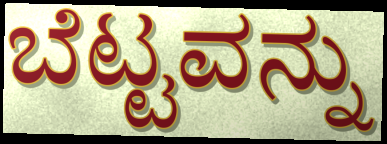
ಬೆಟ್ಟವನ್ನು